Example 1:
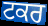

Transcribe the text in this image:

ਟਕਰ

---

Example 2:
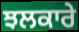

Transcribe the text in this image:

ਝਲਕਾਰੇ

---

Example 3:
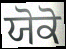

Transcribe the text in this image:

ਯੋਕੋ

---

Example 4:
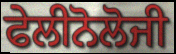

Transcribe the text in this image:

ਫੇਲੀਨੋਲੋਜੀ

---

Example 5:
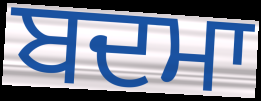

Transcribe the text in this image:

ਬਦਮਾ